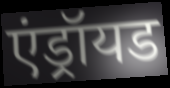
एंड्रॉयड